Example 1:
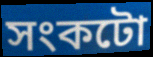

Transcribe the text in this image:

সংকটো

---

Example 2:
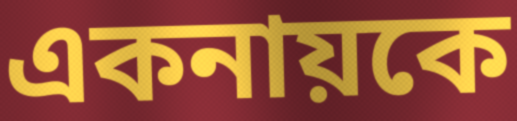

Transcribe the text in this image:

একনায়কে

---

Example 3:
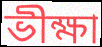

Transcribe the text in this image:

ভীক্ষা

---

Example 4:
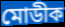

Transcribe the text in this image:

মোডীক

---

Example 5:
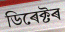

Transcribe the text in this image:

ডিৰেক্টৰ